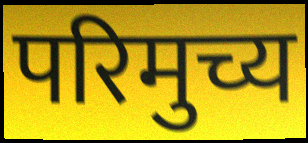
परिमुच्य